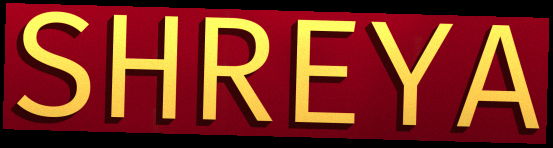
SHREYA